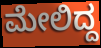
ಮೇಲಿದ್ದ